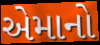
એમાનો